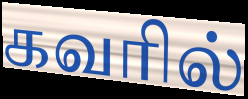
கவரில்